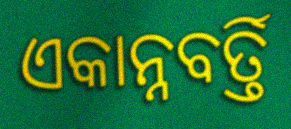
ଏକାନ୍ନବର୍ତ୍ତି